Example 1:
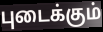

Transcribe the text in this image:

புடைக்கும்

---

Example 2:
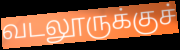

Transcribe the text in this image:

வடலூருக்குச்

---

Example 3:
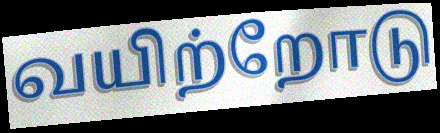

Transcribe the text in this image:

வயிற்றோடு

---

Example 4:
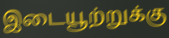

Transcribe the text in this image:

இடையூற்றுக்கு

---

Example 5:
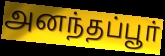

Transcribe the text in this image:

அனந்தப்பூர்